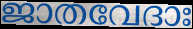
ജാതവേദാഃ